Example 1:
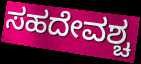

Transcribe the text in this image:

ಸಹದೇವಶ್ಚ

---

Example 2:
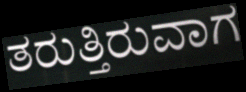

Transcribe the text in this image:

ತರುತ್ತಿರುವಾಗ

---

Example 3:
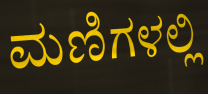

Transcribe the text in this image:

ಮಣಿಗಳಲ್ಲಿ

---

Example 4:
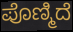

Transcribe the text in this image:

ಪೊಣ್ಮಿದೆ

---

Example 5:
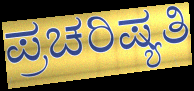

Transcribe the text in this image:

ಪ್ರಚರಿಷ್ಯತಿ